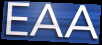
EAA